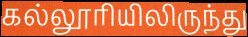
கல்லூரியிலிருந்து